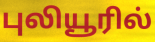
புலியூரில்